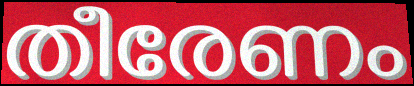
തീരേണം